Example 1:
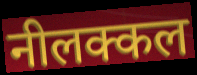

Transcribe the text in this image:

नीलक्कल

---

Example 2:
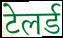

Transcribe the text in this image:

टेलर्ड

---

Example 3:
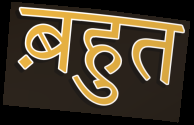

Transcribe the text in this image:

ब़हुत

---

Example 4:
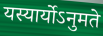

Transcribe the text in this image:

यस्यार्योऽनुमते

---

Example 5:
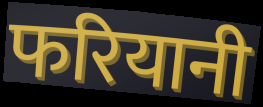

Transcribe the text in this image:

फरियानी